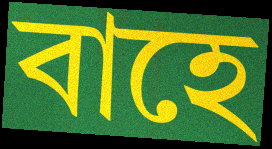
বাহে